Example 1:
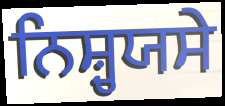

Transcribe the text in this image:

ਨਿਸ਼੍ਚਯਸੇ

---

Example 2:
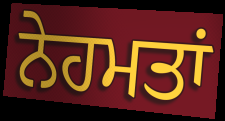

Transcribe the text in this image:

ਨੇਹਮਤਾਂ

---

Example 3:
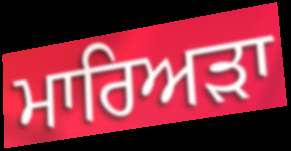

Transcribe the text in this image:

ਮਾਰਿਅੜਾ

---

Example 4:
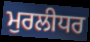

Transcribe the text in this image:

ਮੁਰਲੀਧਰ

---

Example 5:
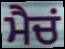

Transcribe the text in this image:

ਮੈਚਂ